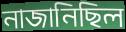
নাজানিছিল